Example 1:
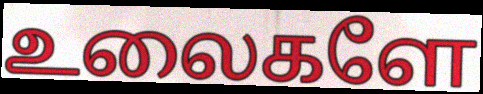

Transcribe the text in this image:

உலைகளே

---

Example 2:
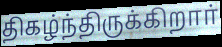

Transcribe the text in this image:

திகழ்ந்திருக்கிறார்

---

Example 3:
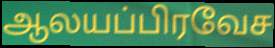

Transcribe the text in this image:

ஆலயப்பிரவேச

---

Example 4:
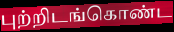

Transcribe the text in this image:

புற்றிடங்கொண்ட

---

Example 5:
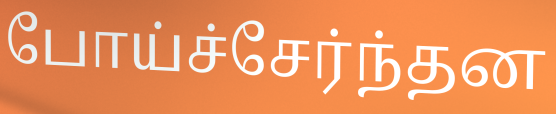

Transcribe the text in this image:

போய்ச்சேர்ந்தன